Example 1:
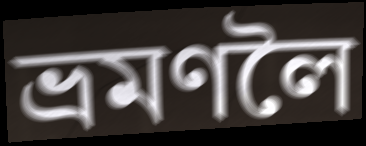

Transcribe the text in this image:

ভ্ৰমণলৈ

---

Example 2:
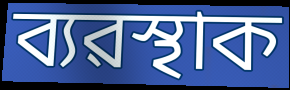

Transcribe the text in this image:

ব্যৱস্থাক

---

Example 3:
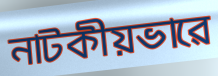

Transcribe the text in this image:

নাটকীয়ভাৱে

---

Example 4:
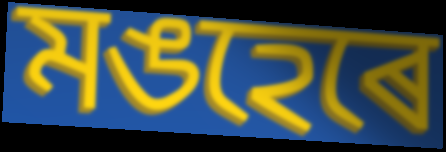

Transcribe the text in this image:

মঙহেৰে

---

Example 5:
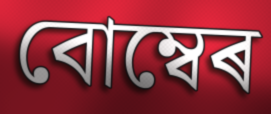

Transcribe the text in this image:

বোম্বেৰ